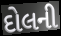
દોલની